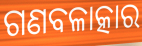
ଗଣବଳାତ୍କାର